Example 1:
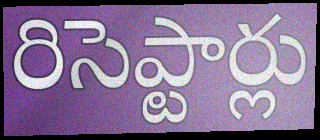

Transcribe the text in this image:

రిసెప్టార్లు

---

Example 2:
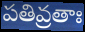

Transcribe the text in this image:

పతివ్రతాః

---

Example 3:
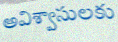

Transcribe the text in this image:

అవిశ్వాసులకు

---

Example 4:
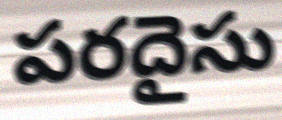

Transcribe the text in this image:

పరదైసు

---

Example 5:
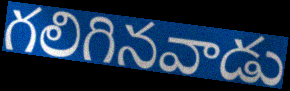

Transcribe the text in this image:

గలిగినవాడు